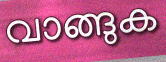
വാങ്ങുക